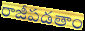
రాజీపడతాం